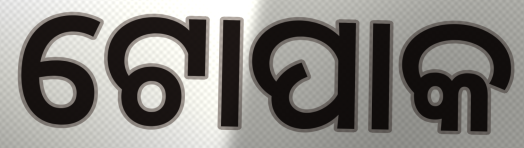
ଟୋପାକ